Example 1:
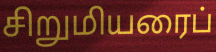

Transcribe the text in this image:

சிறுமியரைப்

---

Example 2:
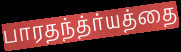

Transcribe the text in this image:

பாரதந்த்ர்யத்தை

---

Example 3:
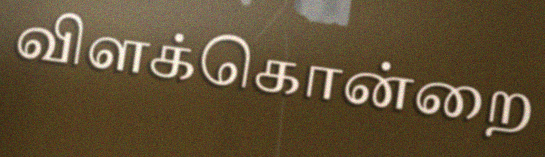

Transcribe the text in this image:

விளக்கொன்றை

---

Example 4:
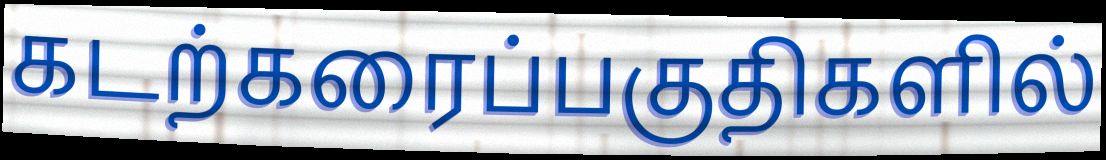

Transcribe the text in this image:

கடற்கரைப்பகுதிகளில்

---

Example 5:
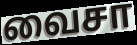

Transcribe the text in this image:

வைசா